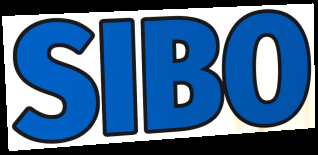
SIBO